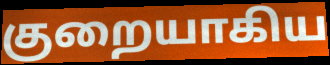
குறையாகிய